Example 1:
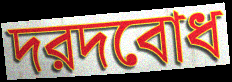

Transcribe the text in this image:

দরদবোধ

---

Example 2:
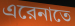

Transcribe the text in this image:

এরেনাতে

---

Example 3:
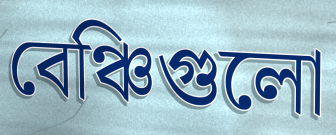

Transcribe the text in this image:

বেঞ্চিগুলো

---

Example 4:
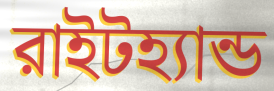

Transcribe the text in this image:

রাইটহ্যান্ড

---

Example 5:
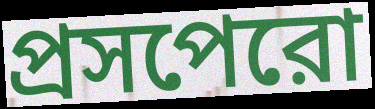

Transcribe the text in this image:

প্রসপেরো